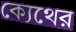
ক্যেথের